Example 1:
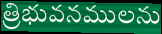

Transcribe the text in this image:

త్రిభువనములను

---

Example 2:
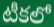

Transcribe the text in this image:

టీకలో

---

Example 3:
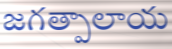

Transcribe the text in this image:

జగత్పాలాయ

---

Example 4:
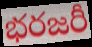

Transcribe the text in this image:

భరజరీ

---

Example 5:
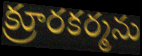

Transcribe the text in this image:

క్రూరకర్మను